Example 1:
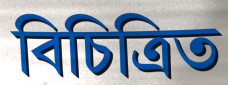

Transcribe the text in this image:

বিচিত্রিত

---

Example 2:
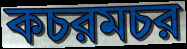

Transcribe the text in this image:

কচরমচর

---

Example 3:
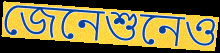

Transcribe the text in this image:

জেনেশুনেও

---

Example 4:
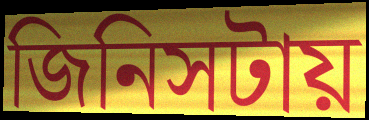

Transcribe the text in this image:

জিনিসটায়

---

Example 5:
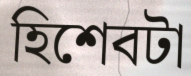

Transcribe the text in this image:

হিশেবটা